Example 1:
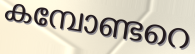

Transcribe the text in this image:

കമ്പോണ്ടറെ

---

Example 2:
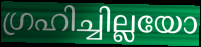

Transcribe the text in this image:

ഗ്രഹിച്ചില്ലയോ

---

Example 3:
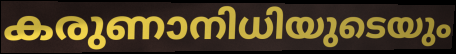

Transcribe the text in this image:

കരുണാനിധിയുടെയും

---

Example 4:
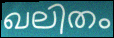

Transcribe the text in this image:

ഖലിതം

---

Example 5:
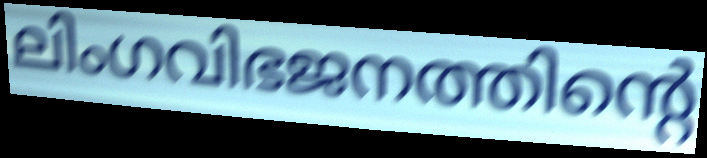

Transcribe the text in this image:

ലിംഗവിഭജനത്തിന്റെ